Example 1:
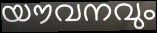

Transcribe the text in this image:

യൗവനവും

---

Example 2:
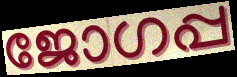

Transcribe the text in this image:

ജോഗപ്പ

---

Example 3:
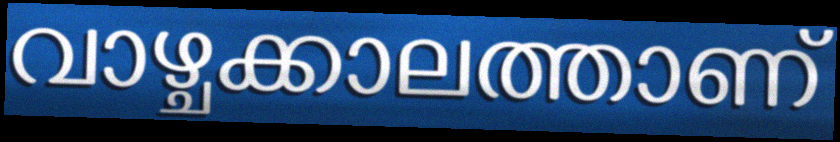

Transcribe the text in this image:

വാഴ്ചക്കാലത്താണ്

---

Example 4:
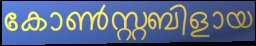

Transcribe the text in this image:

കോൺസ്റ്റബിളായ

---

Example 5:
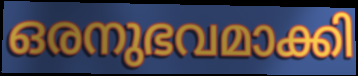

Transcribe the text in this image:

ഒരനുഭവമാക്കി